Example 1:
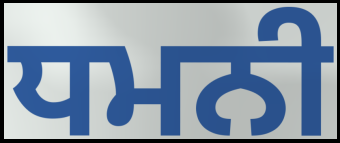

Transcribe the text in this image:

ਧਮਨੀ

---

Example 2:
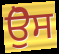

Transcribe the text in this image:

ਉੋਸ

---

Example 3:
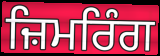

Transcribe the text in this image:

ਜ਼ਿਮਰਿੰਗ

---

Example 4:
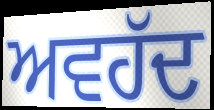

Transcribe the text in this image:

ਅਵਹੱਦ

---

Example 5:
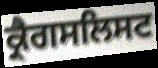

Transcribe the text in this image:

ਕ੍ਰੈਗਸਲਿਸਟ